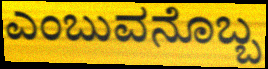
ಎಂಬುವನೊಬ್ಬ